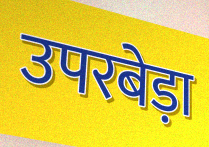
उपरबेड़ा